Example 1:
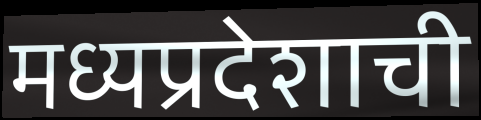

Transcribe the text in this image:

मध्यप्रदेशाची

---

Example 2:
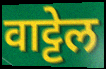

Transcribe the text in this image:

वाट्टेल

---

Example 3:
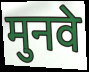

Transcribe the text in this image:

मुनवे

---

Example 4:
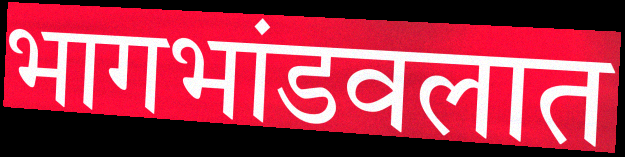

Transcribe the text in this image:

भागभांडवलात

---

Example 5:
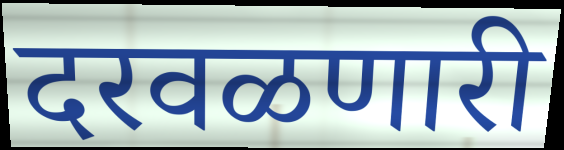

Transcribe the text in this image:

दरवळणारी